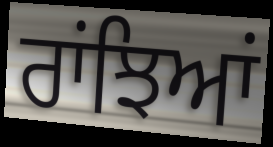
ਰਾਂਝਿਆਂ